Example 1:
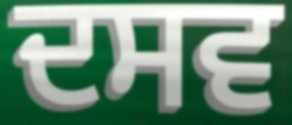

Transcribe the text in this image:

ਦਸਵ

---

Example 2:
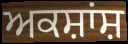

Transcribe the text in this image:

ਅਕਸ਼ਾਂਸ਼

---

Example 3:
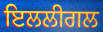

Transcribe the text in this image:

ਇਲਲੀਗਲ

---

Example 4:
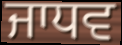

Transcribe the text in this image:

ਜਾਧਵ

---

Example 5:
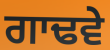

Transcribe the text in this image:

ਗਾਢਵੇ